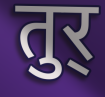
तुर्